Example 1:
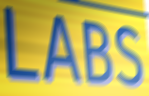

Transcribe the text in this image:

LABS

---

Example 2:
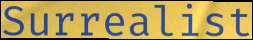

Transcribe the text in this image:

Surrealist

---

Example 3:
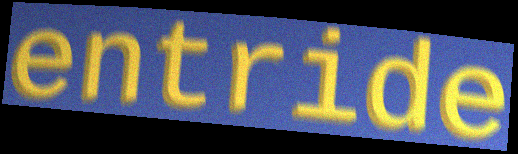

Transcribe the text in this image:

entride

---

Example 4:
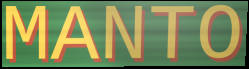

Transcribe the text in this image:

MANTO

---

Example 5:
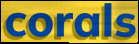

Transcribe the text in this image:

corals